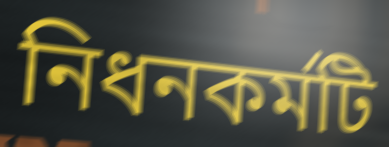
নিধনকর্মটি